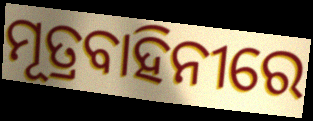
ମୂତ୍ରବାହିନୀରେ